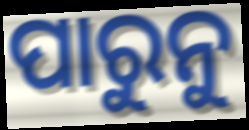
ପାରୁନୁ